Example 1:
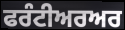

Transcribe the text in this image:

ਫਰੰਟੀਅਰਅਰ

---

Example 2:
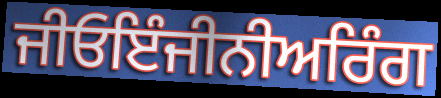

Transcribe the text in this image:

ਜੀਓਇੰਜੀਨੀਅਰਿੰਗ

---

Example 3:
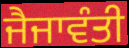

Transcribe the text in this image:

ਜੈਜਾਵੰਤੀ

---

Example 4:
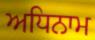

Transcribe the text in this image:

ਅਧਿਨਾਮ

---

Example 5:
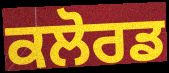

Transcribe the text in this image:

ਕਲੋਰਡ